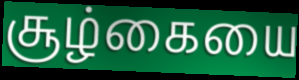
சூழ்கையை